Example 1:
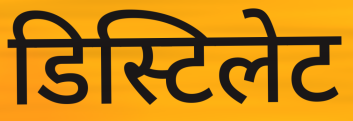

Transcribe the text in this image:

डिस्टिलेट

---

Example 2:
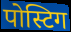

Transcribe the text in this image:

पोस्टिग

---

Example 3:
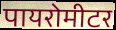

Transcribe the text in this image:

पायरोमीटर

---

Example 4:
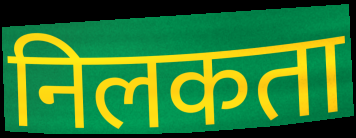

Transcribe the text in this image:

निलकता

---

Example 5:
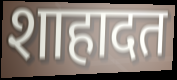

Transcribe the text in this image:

शाहादत